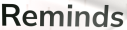
Reminds